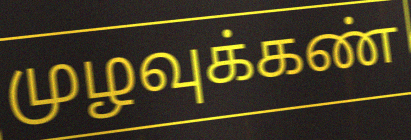
முழவுக்கண்